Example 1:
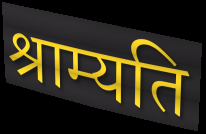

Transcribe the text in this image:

श्राम्यति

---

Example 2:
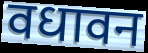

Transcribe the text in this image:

वधावन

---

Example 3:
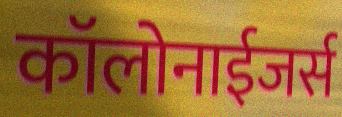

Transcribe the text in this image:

कॉलोनाईजर्स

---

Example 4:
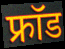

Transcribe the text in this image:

फ्रॉड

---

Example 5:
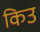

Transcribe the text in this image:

किउ